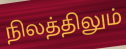
நிலத்திலும்